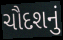
ચૌદશનું